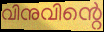
വിനുവിന്റെ